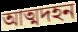
আত্মদহন